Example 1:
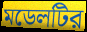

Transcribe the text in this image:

মডেলটির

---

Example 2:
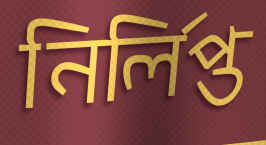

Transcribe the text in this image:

নির্লিপ্ত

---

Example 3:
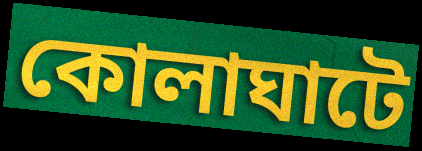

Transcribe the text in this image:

কোলাঘাটে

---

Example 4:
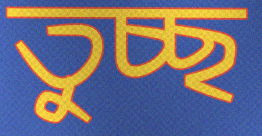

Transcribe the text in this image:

তুচ্ছ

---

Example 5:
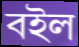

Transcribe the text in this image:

বইল